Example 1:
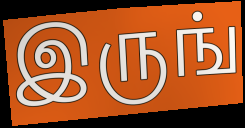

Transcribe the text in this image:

இருங்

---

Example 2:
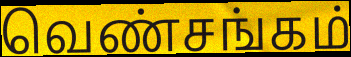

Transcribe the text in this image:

வெண்சங்கம்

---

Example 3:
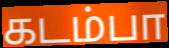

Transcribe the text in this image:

கடம்பா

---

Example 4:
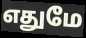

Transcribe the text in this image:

எதுமே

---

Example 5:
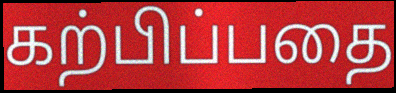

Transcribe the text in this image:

கற்பிப்பதை